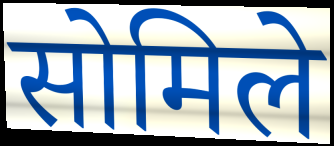
सोमिले